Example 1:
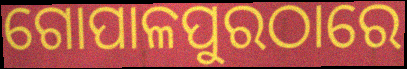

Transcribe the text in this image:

ଗୋପାଳପୁରଠାରେ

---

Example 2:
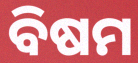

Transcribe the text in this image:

ବିଷମ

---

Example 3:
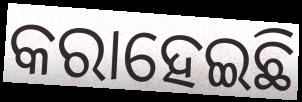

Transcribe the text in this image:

କରାହେଇଛି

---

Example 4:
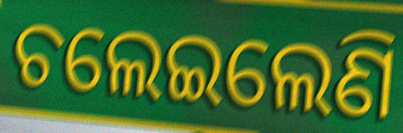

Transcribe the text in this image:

ଚଲେଇଲେଣି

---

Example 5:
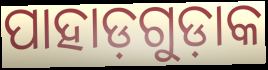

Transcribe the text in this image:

ପାହାଡ଼ଗୁଡ଼ାକ